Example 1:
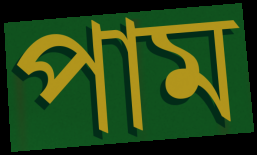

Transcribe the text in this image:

পাম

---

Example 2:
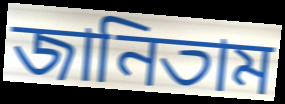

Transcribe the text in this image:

জানিতাম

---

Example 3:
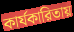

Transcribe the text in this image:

কার্যকারিতায়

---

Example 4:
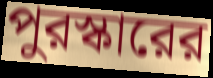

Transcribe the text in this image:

পুরস্কারের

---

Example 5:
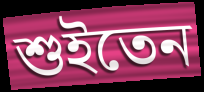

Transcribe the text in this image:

শুইতেন